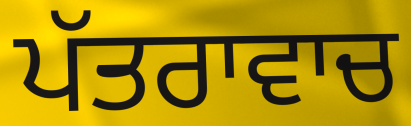
ਪੱਤਰਾਵਾਚ